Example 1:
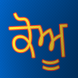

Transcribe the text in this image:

ਕੋਅੂ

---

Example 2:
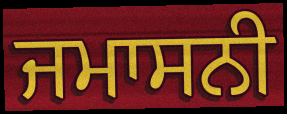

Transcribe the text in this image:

ਜਮਾਸਨੀ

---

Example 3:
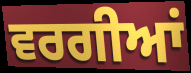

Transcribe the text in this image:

ਵਰਗੀਆਂ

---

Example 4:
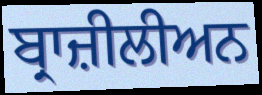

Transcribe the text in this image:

ਬ੍ਰਾਜ਼ੀਲੀਅਨ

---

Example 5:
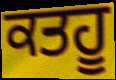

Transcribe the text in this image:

ਕਤਹੂ